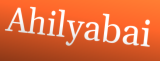
Ahilyabai